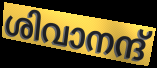
ശിവാനന്ദ്